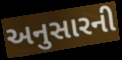
અનુસારની